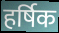
हर्षिक